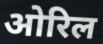
ओरिल